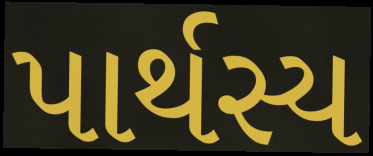
પાર્થસ્ય